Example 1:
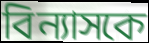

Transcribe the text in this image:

বিন্যাসকে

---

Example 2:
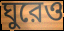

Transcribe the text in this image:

ঘুরেও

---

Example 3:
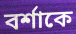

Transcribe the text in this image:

বর্শাকে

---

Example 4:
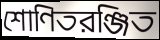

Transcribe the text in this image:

শোণিতরঞ্জিত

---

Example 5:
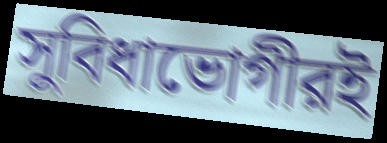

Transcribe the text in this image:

সুবিধাভোগীরই